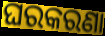
ଘରକରଣା